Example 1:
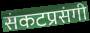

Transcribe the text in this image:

संकटप्रसंगी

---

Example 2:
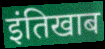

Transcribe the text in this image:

इंतिखाब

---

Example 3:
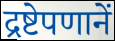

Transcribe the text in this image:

द्रष्टेपणानें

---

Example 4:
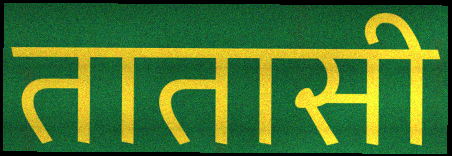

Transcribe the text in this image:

तातासी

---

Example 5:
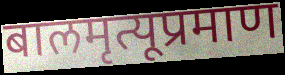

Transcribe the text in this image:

बालमृत्यूप्रमाण